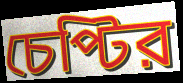
চেপ্টির